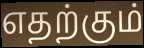
எதற்கும்